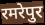
रमरेपुर